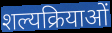
शल्यक्रियाओं